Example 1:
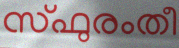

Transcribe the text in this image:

സ്ഫുരംതീ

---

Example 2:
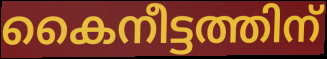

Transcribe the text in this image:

കൈനീട്ടത്തിന്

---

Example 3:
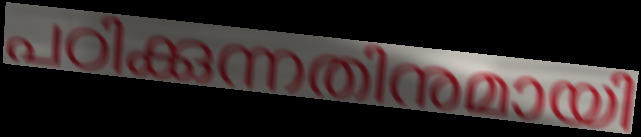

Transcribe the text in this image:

പഠിക്കുന്നതിനുമായി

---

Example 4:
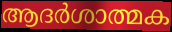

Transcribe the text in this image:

ആദർശാത്മക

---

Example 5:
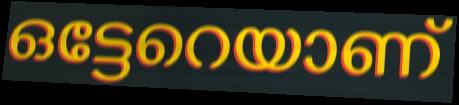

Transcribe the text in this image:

ഒട്ടേറെയാണ്